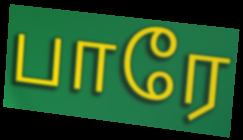
பாரே